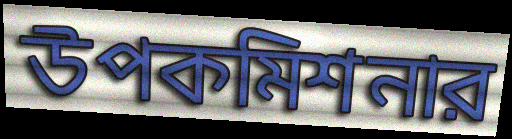
উপকমিশনার